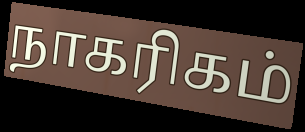
நாகரிகம்